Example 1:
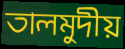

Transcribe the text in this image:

তালমুদীয়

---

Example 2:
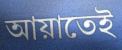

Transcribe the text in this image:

আয়াতেই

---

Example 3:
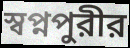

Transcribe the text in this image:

স্বপ্নপুরীর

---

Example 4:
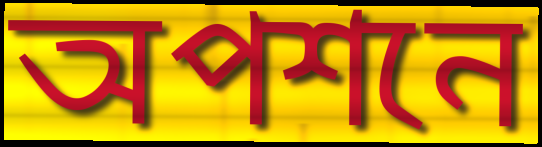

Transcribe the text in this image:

অপশনে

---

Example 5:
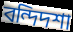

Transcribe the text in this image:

বন্দিদশা